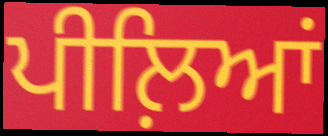
ਪੀਲ਼ਿਆਂ